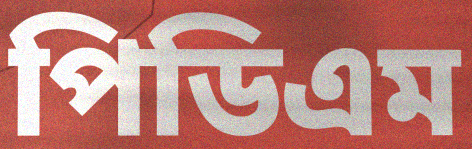
পিডিএম